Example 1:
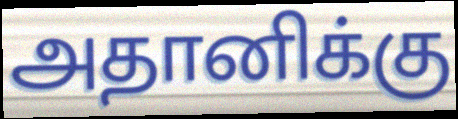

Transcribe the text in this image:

அதானிக்கு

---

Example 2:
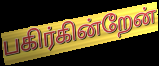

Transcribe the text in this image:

பகிர்கின்றேன்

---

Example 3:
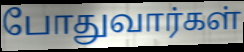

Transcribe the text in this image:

போதுவார்கள்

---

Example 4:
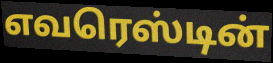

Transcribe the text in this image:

எவரெஸ்டின்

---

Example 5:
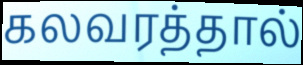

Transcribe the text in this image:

கலவரத்தால்